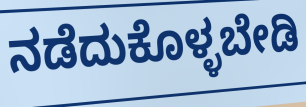
ನಡೆದುಕೊಳ್ಳಬೇಡಿ